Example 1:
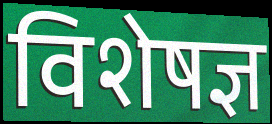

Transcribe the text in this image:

विशेषज्ञ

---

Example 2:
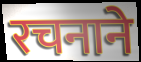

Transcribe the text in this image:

रचनाने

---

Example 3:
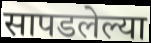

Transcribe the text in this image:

सापडलेल्‍या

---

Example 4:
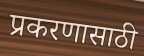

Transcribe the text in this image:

प्रकरणासाठी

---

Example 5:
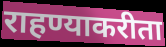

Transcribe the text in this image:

राहण्याकरीता